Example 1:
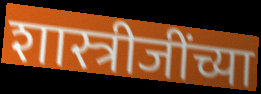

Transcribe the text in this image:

शास्त्रीजींच्या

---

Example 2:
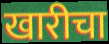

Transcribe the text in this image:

खारीचा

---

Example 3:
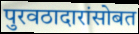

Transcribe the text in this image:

पुरवठादारांसोबत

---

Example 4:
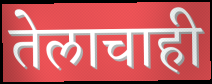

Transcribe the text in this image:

तेलाचाही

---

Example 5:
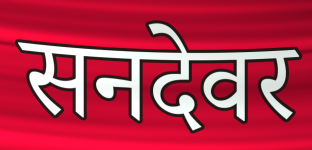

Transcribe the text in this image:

सनदेवर